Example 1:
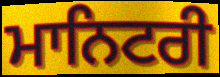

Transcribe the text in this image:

ਮਾਨਿਟਰੀ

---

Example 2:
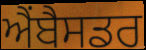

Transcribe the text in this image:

ਐਂਬੈਸਡਰ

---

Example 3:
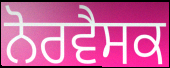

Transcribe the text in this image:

ਨੋਰਵੈਸਕ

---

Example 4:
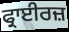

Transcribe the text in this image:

ਫ੍ਰਾਈਰਜ਼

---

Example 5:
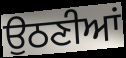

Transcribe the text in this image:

ਉਠਣੀਆਂ